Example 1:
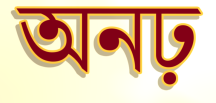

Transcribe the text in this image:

অনঢ়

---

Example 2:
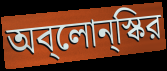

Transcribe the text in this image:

অব্‌লোন্‌স্কির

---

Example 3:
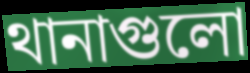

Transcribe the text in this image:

থানাগুলো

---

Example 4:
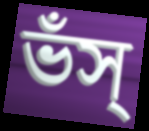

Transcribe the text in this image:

ভঁস্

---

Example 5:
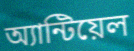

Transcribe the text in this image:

অ্যান্টিয়েল